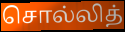
சொல்லித்